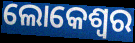
ଲୋକେଶ୍ୱର